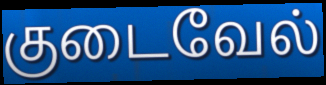
குடைவேல்